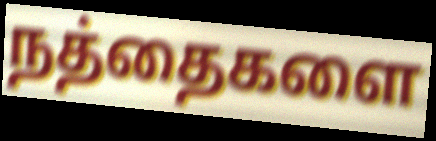
நத்தைகளை